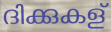
ദിക്കുകള്